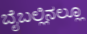
ಬೈಬಲ್ಲಿನಲ್ಲೂ